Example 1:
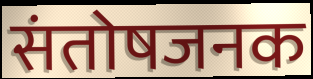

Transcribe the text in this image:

संतोषजनक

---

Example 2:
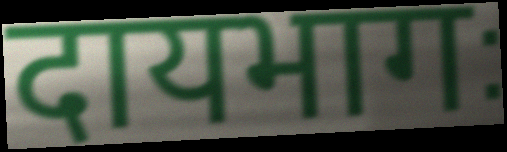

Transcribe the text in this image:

दायभागः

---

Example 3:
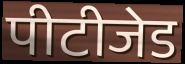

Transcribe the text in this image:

पीटीजेड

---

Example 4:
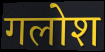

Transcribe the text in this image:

गलोश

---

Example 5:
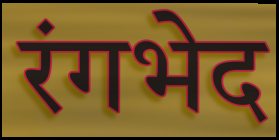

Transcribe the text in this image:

रंगभेद